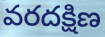
వరదక్షిణ